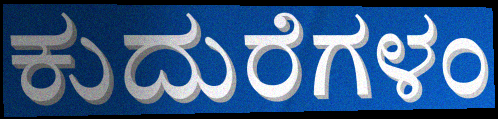
ಕುದುರೆಗಳಂ